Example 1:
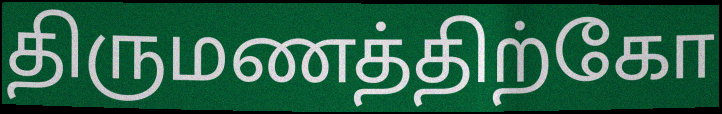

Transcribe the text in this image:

திருமணத்திற்கோ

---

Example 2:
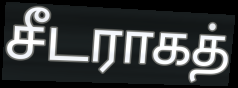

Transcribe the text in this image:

சீடராகத்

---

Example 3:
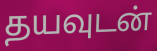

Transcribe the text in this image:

தயவுடன்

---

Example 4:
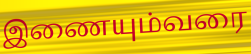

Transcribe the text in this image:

இணையும்வரை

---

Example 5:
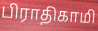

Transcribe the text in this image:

பிராதிகாமி